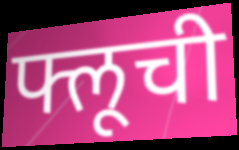
फ्लूची